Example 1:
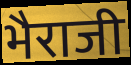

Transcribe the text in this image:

भैराजी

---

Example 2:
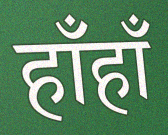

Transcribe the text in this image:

हाँहाँ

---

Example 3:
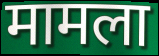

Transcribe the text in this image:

मामला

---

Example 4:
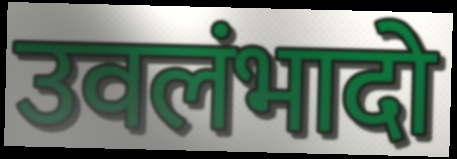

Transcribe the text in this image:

उवलंभादो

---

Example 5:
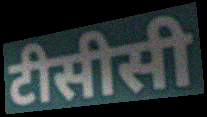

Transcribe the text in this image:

टीसीसी